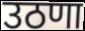
उठणा